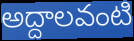
అద్దాలవంటి